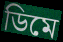
ডিমে